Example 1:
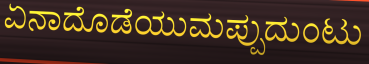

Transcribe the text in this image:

ಏನಾದೊಡೆಯುಮಪ್ಪುದುಂಟು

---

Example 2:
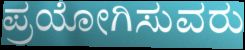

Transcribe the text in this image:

ಪ್ರಯೋಗಿಸುವರು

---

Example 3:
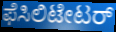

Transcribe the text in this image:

ಫೆಸಿಲಿಟೇಟರ್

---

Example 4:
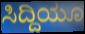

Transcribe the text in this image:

ಸಿದ್ದಿಯೂ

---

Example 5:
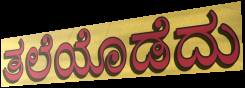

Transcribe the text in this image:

ತಲೆಯೊಡೆದು